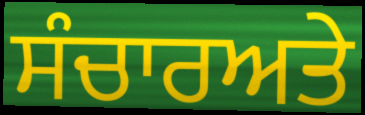
ਸੰਚਾਰਅਤੇ